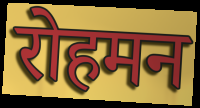
रोहमन